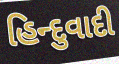
હિન્દુવાદી